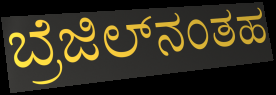
ಬ್ರೆಜಿಲ್‌ನಂತಹ